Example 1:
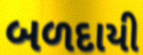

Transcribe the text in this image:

બળદાયી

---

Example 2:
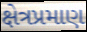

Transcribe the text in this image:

ક્ષેત્રપ્રમાણ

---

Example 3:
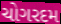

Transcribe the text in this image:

ચોગરદમ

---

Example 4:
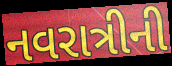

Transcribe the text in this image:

નવરાત્રીની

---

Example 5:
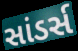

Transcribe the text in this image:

સાંડર્સ